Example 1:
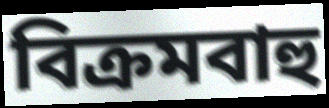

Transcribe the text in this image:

বিক্রমবাহু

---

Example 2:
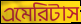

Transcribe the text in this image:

এমেরিটাস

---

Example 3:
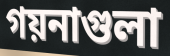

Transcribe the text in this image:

গয়নাগুলা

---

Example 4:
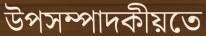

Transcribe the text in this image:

উপসম্পাদকীয়তে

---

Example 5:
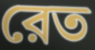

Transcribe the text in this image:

রেত